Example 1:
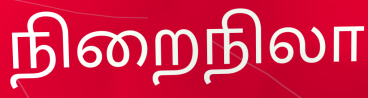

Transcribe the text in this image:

நிறைநிலா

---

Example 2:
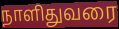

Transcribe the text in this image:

நாளிதுவரை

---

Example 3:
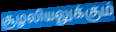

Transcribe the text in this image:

சூழலியலுக்கும்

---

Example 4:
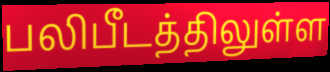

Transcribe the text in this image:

பலிபீடத்திலுள்ள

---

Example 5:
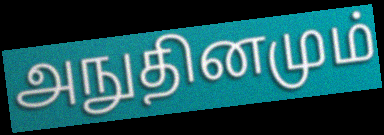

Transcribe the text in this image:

அநுதினமும்